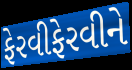
ફેરવીફેરવીને